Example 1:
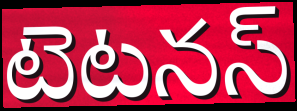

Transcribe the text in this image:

టెటనస్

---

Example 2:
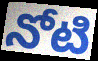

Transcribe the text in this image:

నోటి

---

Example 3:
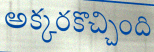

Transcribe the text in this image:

అక్కరకొచ్చింది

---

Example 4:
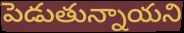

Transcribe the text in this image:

పెడుతున్నాయని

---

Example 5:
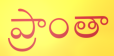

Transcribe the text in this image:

ప్రాంతా